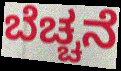
ಬೆಚ್ಚನೆ